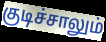
குடிச்சாலும்